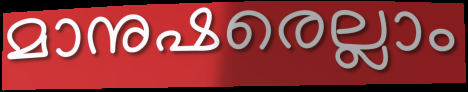
മാനുഷരെല്ലാം